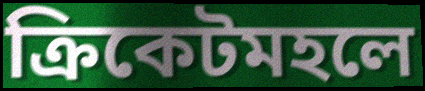
ক্রিকেটমহলে